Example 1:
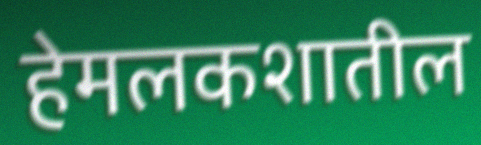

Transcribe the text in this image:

हेमलकशातील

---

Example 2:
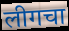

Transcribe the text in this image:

लीगचा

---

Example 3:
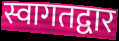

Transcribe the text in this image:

स्वागतद्वार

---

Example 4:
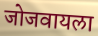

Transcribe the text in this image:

जोजवायला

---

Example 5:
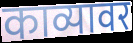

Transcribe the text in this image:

काव्यावर